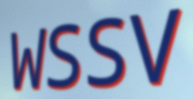
WSSV